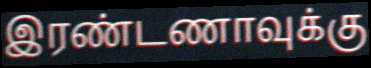
இரண்டணாவுக்கு